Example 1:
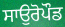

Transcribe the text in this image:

ਸਾਉਰੋਪੌਡ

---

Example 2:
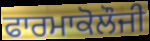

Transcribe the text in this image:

ਫਾਰਮਾਕੋਲੌਜੀ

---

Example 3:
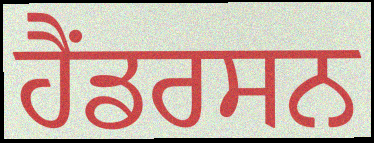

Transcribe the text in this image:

ਹੈਂਡਰਸਨ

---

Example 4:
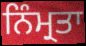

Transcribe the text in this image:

ਨਿੰਮ੍ਰਤਾ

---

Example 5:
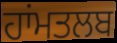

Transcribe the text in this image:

ਹਾਂਮਤਲਬ